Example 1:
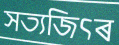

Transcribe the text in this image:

সত্যজিৎৰ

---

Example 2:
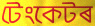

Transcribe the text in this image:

টেংকেটৰ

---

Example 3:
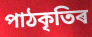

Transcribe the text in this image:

পাঠকৃতিৰ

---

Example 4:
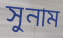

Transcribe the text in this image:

সুনাম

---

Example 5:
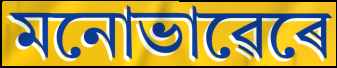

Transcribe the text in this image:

মনোভাৱেৰে